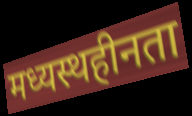
मध्यस्थहीनता